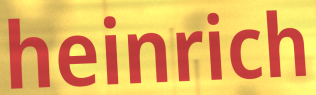
heinrich